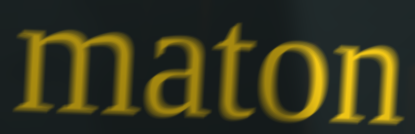
maton